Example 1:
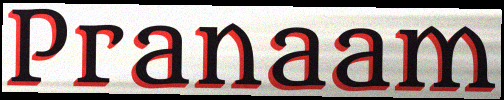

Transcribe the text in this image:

Pranaam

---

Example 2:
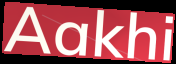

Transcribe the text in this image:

Aakhi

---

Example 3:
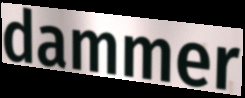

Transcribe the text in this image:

dammer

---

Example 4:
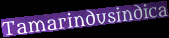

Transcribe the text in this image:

Tamarindusindica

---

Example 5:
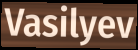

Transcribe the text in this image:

Vasilyev